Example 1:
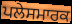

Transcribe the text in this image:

ਪਲੇਸਮਾਰਕ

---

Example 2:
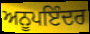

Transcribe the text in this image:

ਅਨੂਪਇੰਦਰ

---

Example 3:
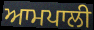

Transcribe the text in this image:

ਆਮਪਾਲੀ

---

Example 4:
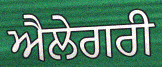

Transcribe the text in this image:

ਐਲੇਗਰੀ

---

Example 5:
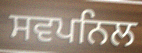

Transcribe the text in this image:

ਸਵਪਨਿਲ